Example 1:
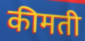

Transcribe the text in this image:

कीमती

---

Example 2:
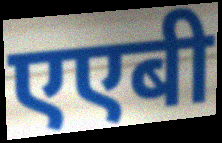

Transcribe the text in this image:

एएबी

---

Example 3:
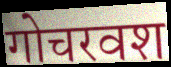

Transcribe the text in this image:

गोचरवश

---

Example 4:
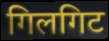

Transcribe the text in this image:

गिलगिट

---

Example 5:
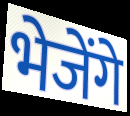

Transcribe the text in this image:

भेजेंगे